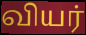
வியர்